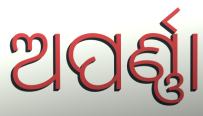
ଅପର୍ଣ୍ଣା